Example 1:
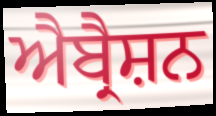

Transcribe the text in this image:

ਐਬ੍ਰੈਸ਼ਨ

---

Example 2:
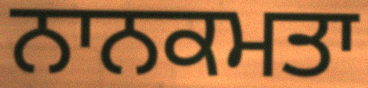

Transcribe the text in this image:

ਨਾਨਕਮਤਾ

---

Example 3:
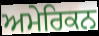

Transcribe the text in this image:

ਅਮੇਰਿਕਨ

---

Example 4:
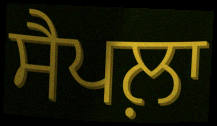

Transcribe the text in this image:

ਸੈਪਲ਼ਾ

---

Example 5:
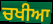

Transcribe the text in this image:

ਚਖੀਆ